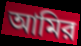
আমির